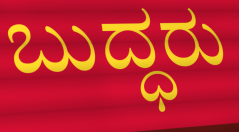
ಬುದ್ಧರು